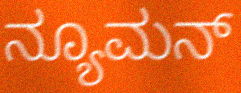
ನ್ಯೂಮನ್